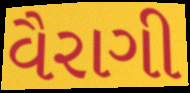
વૈરાગી